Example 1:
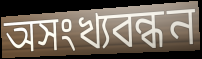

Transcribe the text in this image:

অসংখ্যবন্ধন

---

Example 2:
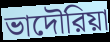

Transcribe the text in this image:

ভাদৌরিয়া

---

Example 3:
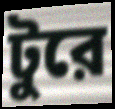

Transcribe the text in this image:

টুরে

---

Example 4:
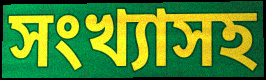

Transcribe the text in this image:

সংখ্যাসহ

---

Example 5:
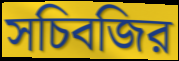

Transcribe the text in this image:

সচিবজির